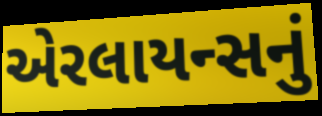
એરલાયન્સનું